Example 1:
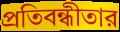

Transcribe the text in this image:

প্রতিবন্ধীতার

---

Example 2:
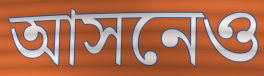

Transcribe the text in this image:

আসনেও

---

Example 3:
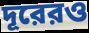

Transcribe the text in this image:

দূরেরও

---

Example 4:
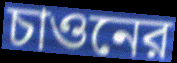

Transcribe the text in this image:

চাওনের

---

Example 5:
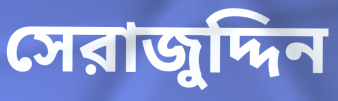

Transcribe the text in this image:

সেরাজুদ্দিন